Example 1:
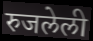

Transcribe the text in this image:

रुजलेली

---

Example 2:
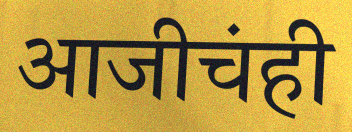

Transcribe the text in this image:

आजीचंही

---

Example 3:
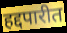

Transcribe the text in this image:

हद्दपारीत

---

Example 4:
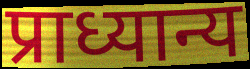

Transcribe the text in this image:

प्राध्यान्य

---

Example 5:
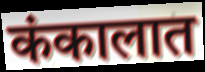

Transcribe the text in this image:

कंकालात